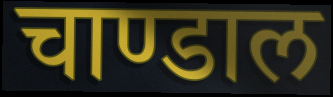
चाण्डाल